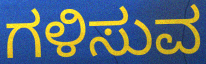
ಗಳಿಸುವ